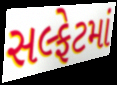
સલ્ફેટમાં